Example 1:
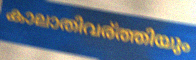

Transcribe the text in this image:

കാലാതിവര്ത്തിയും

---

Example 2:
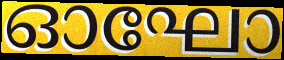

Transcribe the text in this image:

ഓഘോ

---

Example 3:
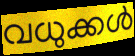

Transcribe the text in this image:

വധുക്കൾ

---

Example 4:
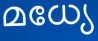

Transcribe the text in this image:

മധ്യേ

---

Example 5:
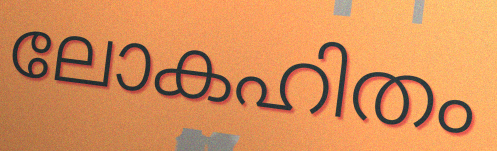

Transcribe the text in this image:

ലോകഹിതം